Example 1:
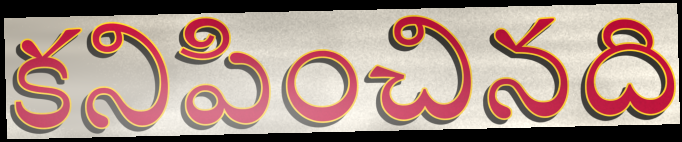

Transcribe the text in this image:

కనిపించినది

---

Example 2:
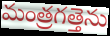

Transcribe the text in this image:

మంత్రగత్తెను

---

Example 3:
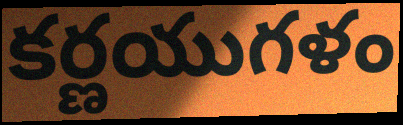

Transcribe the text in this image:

కర్ణయుగళం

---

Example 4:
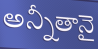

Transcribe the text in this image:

అన్నీతానై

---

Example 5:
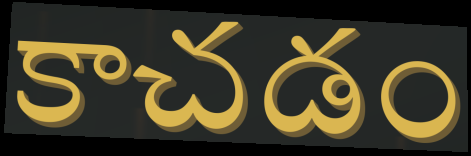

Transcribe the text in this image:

కాచడం